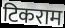
टिकराम